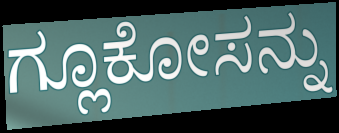
ಗ್ಲೂಕೋಸನ್ನು